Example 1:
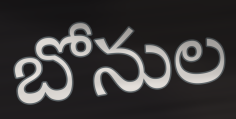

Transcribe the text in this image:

బోనుల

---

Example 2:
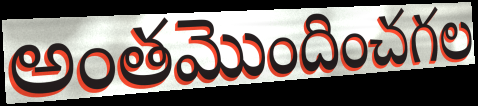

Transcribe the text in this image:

అంతమొందించగల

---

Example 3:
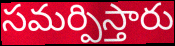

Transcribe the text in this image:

సమర్పిస్తారు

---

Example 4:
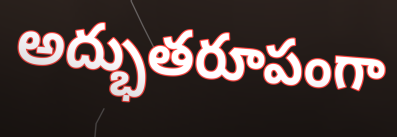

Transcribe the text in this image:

అద్భుతరూపంగా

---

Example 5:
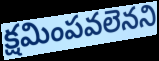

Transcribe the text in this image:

క్షమింపవలెనని